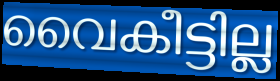
വൈകീട്ടില്ല